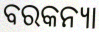
ବରକନ୍ୟା